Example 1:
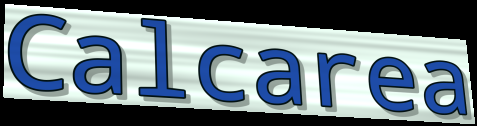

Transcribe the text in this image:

Calcarea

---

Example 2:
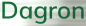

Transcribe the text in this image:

Dagron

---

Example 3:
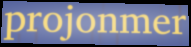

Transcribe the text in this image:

projonmer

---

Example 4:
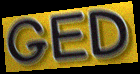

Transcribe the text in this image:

GED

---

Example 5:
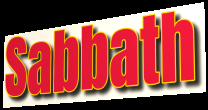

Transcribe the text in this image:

Sabbath